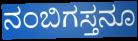
ನಂಬಿಗಸ್ತನೂ